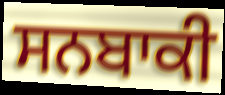
ਸਨਬਾਕੀ